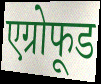
एग्रोफूड